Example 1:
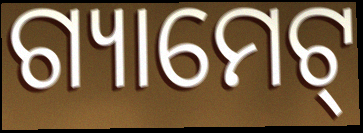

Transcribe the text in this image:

ଗ୍ୟାମେଟ୍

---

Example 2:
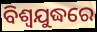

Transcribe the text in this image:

ବିଶ୍ବଯୁଦ୍ଧରେ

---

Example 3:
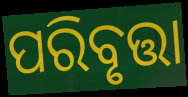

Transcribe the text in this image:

ପରିବୃତ୍ତା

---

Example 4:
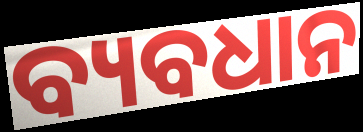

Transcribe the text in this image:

ବ୍ୟବଧାନ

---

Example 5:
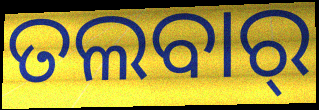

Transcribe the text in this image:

ତଲବାର୍